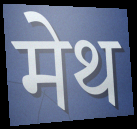
मेथ